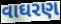
વાઘરણ